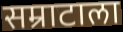
सम्राटाला